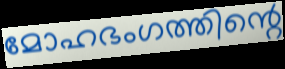
മോഹഭംഗത്തിന്റെ